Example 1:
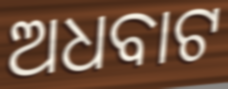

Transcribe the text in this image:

ଅଧବାଟ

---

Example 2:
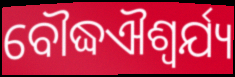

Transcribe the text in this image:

ବୌଦ୍ଧଐଶ୍ୱର୍ଯ୍ୟ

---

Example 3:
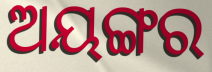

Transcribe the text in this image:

ଅୟଙ୍ଗର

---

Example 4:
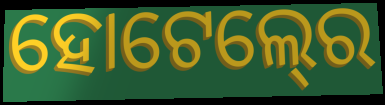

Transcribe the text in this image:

ହୋଟେଲ୍‍ରେ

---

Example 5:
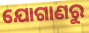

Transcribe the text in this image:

ଯୋଗାଣରୁ